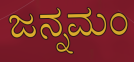
ಜನ್ನಮಂ